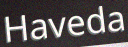
Haveda